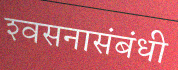
श्वसनासंबंधी